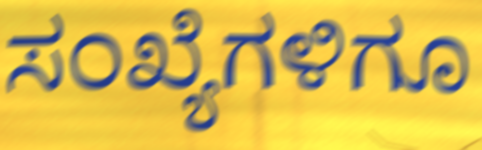
ಸಂಖ್ಯೆಗಳಿಗೂ